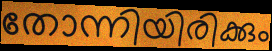
തോന്നിയിരിക്കും